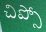
చిప్సో